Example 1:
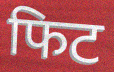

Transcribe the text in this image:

फिट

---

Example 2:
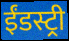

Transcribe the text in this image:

ईंडस्ट्री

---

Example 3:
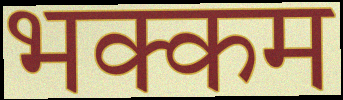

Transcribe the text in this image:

भक्कम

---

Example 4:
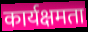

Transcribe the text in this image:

कार्यक्षमता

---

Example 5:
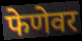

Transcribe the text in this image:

फेणेवर